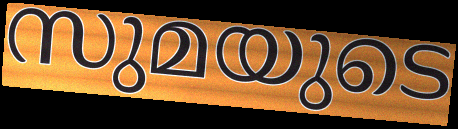
സുമയുടെ